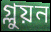
গ্লুয়ন